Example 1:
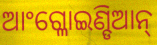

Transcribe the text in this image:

ଆଂଗ୍ଳୋଇଣ୍ଡିଆନ୍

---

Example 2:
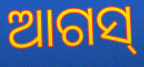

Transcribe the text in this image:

ଆଗସ୍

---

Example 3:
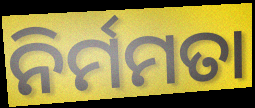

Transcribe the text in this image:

ନିର୍ମମତା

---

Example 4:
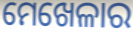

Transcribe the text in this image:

ମେଖେଳାର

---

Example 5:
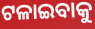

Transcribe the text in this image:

ଟଳାଇବାକୁ